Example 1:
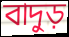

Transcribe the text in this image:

বাদুড়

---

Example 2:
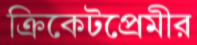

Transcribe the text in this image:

ক্রিকেটপ্রেমীর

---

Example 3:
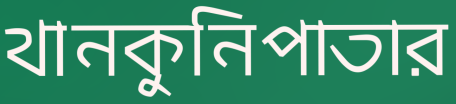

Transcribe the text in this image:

থানকুনিপাতার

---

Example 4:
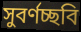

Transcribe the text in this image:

সুবর্ণচ্ছবি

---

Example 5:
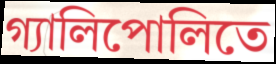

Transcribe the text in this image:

গ্যালিপোলিতে